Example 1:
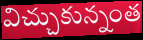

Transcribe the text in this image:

విచ్చుకున్నంత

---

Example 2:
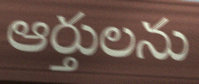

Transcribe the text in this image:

ఆర్తులను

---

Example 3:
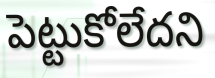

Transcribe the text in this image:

పెట్టుకోలేదని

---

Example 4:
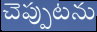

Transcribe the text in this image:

చెప్పుటను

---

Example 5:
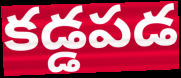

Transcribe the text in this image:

కడ్డపడ